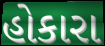
હોકારા